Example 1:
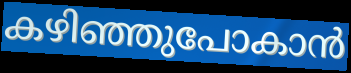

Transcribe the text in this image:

കഴിഞ്ഞുപോകാൻ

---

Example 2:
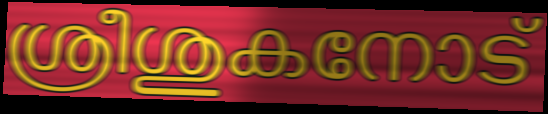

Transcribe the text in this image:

ശ്രീശുകനോട്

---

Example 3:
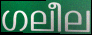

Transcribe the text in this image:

ഗലീല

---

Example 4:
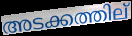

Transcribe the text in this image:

അടക്കത്തില്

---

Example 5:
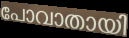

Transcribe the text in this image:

പോവാതായി